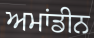
ਅਮਾਂਡੀਨ